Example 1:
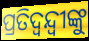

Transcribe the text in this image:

ପ୍ରତିଦ୍ଵନ୍ଦ୍ୱୀଙ୍କୁ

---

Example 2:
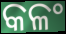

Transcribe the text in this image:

କଳଂ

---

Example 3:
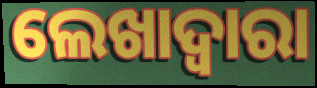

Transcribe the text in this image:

ଲେଖାଦ୍ୱାରା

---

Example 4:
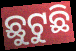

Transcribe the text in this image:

ଛୁଟୁଛି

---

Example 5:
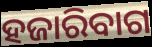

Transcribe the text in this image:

ହଜାରିବାଗ